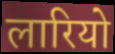
लारियो